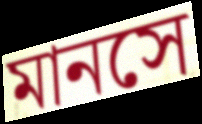
মানসে